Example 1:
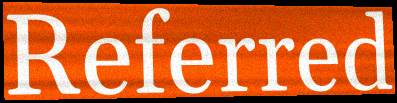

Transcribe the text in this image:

Referred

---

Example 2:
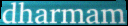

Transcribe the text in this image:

dharmam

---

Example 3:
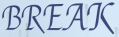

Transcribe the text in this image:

BREAK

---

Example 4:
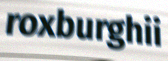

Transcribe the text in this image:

roxburghii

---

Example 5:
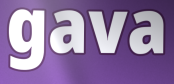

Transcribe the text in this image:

gava